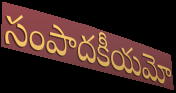
సంపాదకీయమో